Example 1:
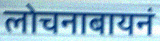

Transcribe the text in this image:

लोचनाबायनं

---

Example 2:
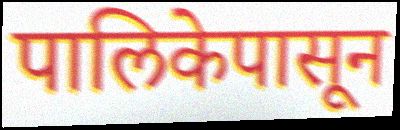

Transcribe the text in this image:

पालिकेपासून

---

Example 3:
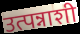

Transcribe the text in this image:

उत्पन्नाशी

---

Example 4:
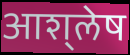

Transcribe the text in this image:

आश्लेष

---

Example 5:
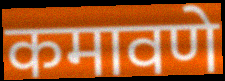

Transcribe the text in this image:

कमावणे